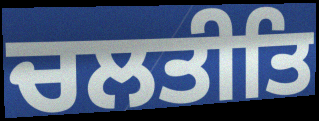
ਚਲਤੀਤਿ